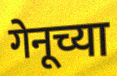
गेनूच्या